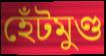
হেঁটমুণ্ড